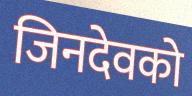
जिनदेवको